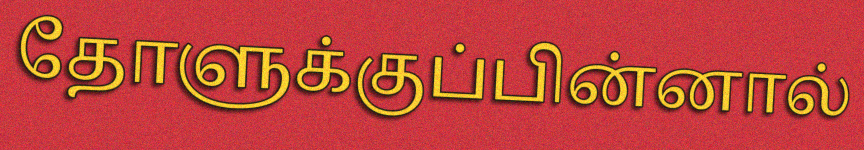
தோளுக்குப்பின்னால்